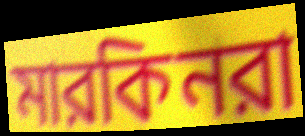
মারকিনরা